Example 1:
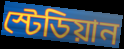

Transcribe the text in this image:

স্টেডিয়ান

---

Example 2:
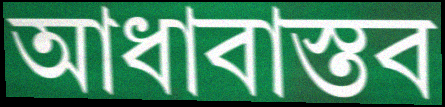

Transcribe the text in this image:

আধাবাস্তব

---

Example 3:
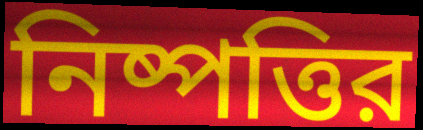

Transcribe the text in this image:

নিষ্পত্তির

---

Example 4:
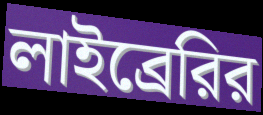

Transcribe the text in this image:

লাইব্রেরির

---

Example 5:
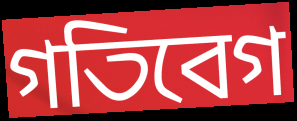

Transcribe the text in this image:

গতিবেগ